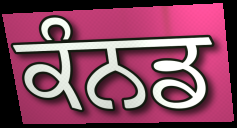
ਕੰਨਡ